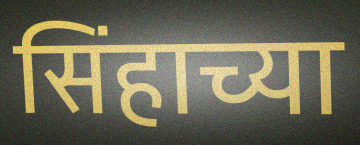
सिंहाच्या